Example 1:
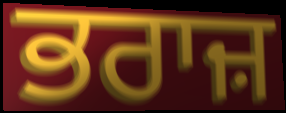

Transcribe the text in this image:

ਭਰਾਜ਼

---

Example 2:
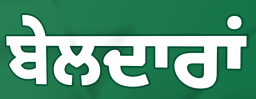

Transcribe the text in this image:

ਬੇਲਦਾਰਾਂ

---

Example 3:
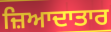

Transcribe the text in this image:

ਜ਼ਿਆਦਾਤਾਰ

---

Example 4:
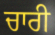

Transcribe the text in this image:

ਚਾਰੀ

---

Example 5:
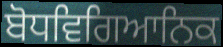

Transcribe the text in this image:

ਬੋਧਵਿਗਿਆਨਿਕ